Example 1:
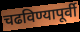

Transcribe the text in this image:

चढविण्यापूर्वी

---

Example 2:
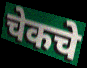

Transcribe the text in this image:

चेकचे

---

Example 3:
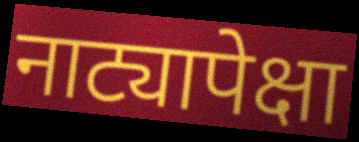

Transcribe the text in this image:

नाट्यापेक्षा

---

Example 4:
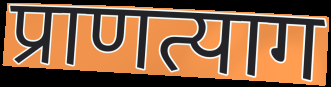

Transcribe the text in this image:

प्राणत्याग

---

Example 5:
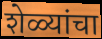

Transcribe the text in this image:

शेळ्यांचा